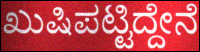
ಖುಷಿಪಟ್ಟಿದ್ದೇನೆ